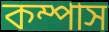
কম্পাস